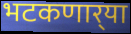
भटकणार्‍या